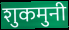
शुकमुनी